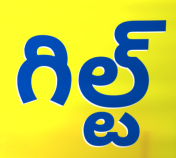
గిల్ట్